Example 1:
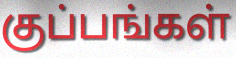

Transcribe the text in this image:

குப்பங்கள்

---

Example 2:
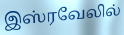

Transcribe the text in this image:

இஸ்ரவேலில்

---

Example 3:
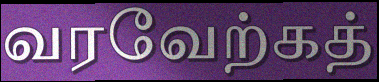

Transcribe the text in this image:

வரவேற்கத்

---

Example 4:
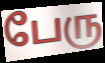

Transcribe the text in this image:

பேரு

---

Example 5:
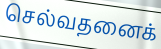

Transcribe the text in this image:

செல்வதனைக்